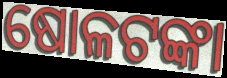
ଷୋଳଟଙ୍କା